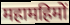
महामहिमों